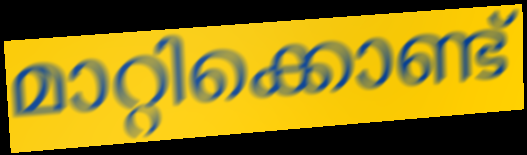
മാറ്റിക്കൊണ്ട്